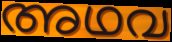
അഥവ